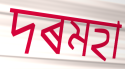
দৰমহা